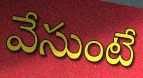
వేసుంటే